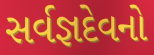
સર્વજ્ઞદેવનો